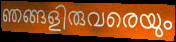
ഞങ്ങളിരുവരെയും